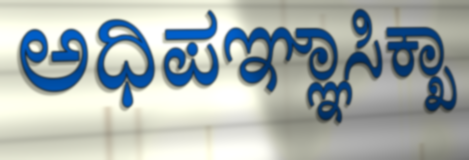
ಅಧಿಪಞ್ಞಾಸಿಕ್ಖಾ